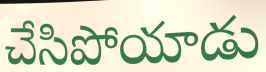
చేసిపోయాడు